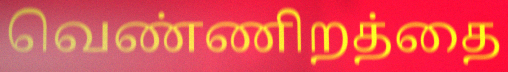
வெண்ணிறத்தை